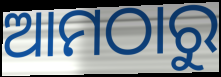
ଆମଠାରୁ